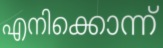
എനിക്കൊന്ന്